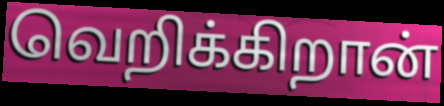
வெறிக்கிறான்